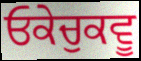
ਓਕੇਚੁਕਵੂ